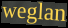
weglan